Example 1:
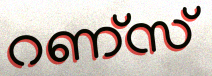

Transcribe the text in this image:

റണ്സ്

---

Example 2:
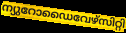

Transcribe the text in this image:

ന്യുറോഡൈവേഴ്സിറ്റി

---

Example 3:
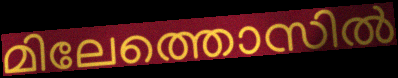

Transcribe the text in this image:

മിലേത്തൊസിൽ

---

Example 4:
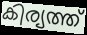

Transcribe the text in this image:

കിര്യത്ത്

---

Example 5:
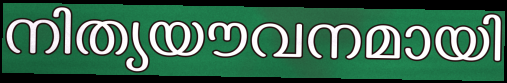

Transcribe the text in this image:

നിത്യയൗവനമായി